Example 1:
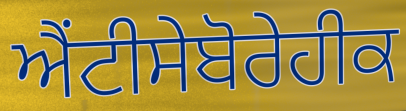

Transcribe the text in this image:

ਐਂਟੀਸੇਬੋਰੇਹੀਕ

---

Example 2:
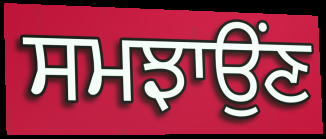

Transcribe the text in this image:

ਸਮਝਾਉਂਣ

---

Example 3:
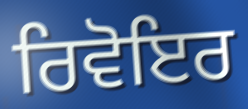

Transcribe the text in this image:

ਰਿਵੋਇਰ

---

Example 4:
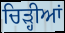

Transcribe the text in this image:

ਚਿੜ੍ਹੀਆਂ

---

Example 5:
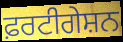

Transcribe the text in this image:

ਫ਼ਰਟੀਗੇਸ਼ਨ